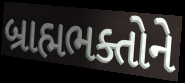
બ્રાહ્મભક્તોને